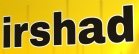
irshad